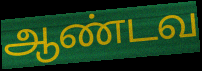
ஆண்டவ